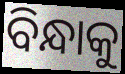
ବିନ୍ଧାକୁ